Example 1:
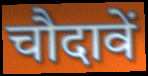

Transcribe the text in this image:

चौदावें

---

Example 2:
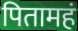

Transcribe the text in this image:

पितामहं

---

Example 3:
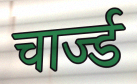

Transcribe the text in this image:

चार्ज्ड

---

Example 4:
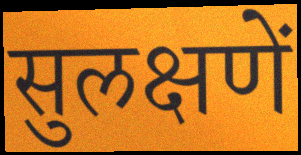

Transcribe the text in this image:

सुलक्षणें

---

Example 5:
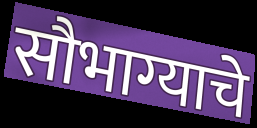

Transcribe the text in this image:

सौभाग्याचे